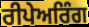
ਰੀਪੇਅਰਿੰਗ